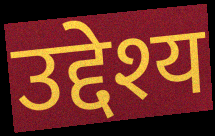
उद्देश्‍य